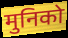
मुनिको